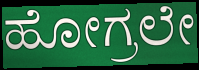
ಹೋಗ್ರಲೇ